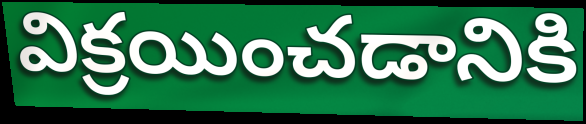
విక్రయించడానికి